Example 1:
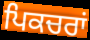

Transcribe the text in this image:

ਪਿਕਚਰਾਂ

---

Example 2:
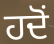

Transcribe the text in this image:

ਹਦੋਂ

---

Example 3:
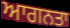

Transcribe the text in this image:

ਆਗਨਤਾ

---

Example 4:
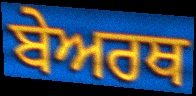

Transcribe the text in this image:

ਬੇਅਰਥ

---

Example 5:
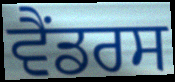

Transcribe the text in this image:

ਵੈਂਡਰਸ